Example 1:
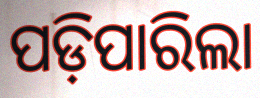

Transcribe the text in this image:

ପଡ଼ିପାରିଲା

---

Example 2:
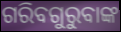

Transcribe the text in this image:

ଗରିବଗୁରୁବାଙ୍କ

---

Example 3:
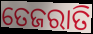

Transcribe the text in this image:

ତେଜରାତି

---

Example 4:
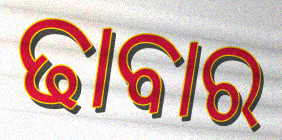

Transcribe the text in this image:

ଢାବାର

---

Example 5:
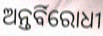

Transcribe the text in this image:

ଅନ୍ତର୍ବିରୋଧୀ